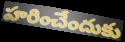
హరించేందుకు